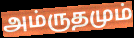
அம்ருதமும்